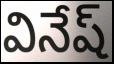
వినేష్